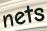
nets